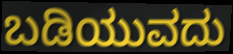
ಬಡಿಯುವದು